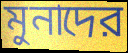
মুনাদের